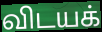
விடயக்